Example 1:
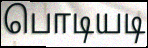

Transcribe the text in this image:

பொடியடி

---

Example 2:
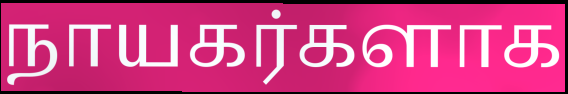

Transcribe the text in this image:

நாயகர்களாக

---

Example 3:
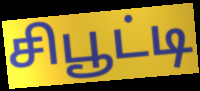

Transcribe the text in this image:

சிபூட்டி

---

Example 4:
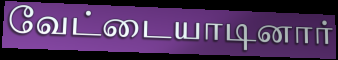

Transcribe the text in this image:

வேட்டையாடினார்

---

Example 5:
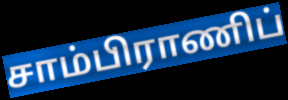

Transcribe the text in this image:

சாம்பிராணிப்